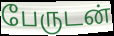
பேருடன்